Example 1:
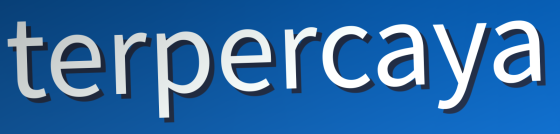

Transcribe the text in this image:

terpercaya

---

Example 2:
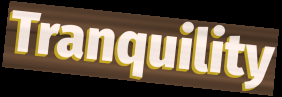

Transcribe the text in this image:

Tranquility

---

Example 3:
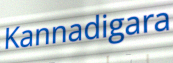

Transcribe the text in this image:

Kannadigara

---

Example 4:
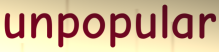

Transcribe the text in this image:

unpopular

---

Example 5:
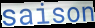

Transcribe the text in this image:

saison